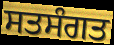
ਸਤਸੰਗਤ